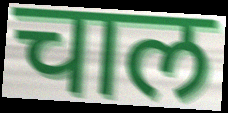
चाल